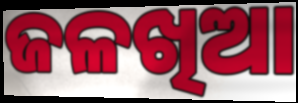
ଜଳଖିଆ